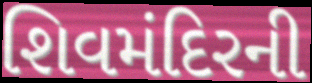
શિવમંદિરની